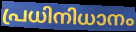
പ്രധിനിധാനം